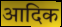
आदिक